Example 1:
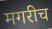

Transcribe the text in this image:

मगरीच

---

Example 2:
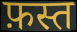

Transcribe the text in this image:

फ़स्त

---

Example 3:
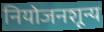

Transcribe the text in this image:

नियोजनशून्य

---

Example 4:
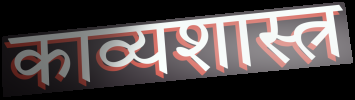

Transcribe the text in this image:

काव्यशास्त्र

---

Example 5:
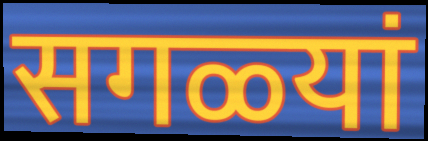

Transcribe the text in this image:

सगळ्यां